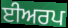
ਈਅਰਪ